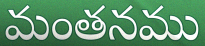
మంతనము